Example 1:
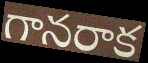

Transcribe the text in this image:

గానరాక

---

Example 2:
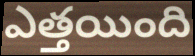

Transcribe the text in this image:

ఎత్తయింది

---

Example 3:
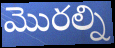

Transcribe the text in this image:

మొరల్ని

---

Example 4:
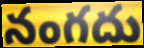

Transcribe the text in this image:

నంగదు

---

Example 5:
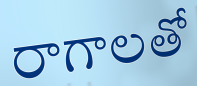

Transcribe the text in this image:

రాగాలతో